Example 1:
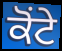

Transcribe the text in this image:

ਕੋਂਟੇ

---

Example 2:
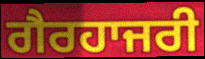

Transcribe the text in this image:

ਗੈਰਹਾਜਰੀ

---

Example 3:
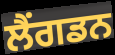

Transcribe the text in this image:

ਲੈਂਗਡਨ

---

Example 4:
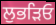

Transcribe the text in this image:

ਲੁਭੜਿਓ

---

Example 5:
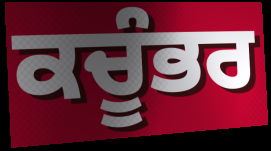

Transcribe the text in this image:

ਕਚੂੰਭਰ